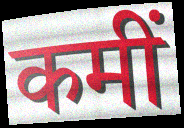
कमीं